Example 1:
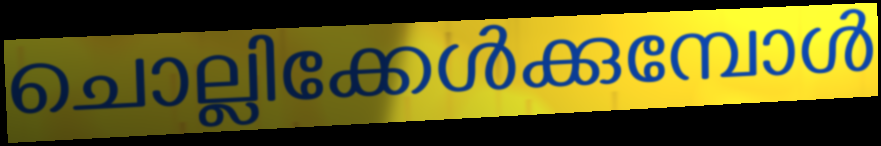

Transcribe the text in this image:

ചൊല്ലിക്കേൾക്കുമ്പോൾ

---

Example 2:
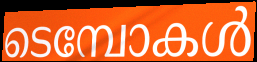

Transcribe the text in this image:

ടെമ്പോകൾ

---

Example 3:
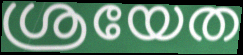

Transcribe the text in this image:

ശ്രയേത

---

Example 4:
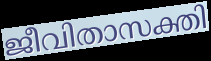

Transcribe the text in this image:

ജീവിതാസക്തി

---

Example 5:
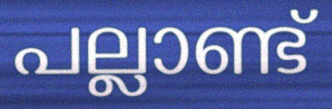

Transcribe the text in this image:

പല്ലാണ്ട്